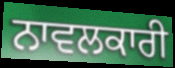
ਨਾਵਲਕਾਰੀ